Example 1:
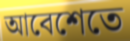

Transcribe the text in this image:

আবেশেতে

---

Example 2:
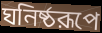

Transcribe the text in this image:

ঘনিষ্ঠরূপে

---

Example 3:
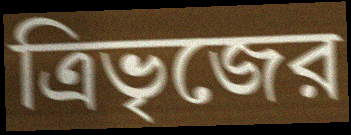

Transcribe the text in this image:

ত্রিভৃজের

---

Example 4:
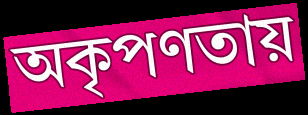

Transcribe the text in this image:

অকৃপণতায়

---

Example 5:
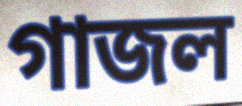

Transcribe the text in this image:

গাজল